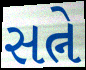
સત્ને